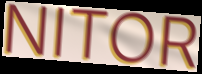
NITOR